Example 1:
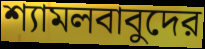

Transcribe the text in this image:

শ্যামলবাবুদের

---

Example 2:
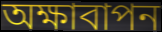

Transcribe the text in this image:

অক্ষাবাপন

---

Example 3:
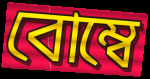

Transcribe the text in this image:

বোম্বে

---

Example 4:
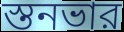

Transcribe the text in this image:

স্তনভার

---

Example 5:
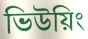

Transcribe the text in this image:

ভিউয়িং